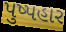
પુષ્પહાર